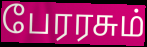
பேரரசும்